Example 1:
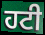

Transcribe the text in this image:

ਹਟੀ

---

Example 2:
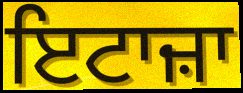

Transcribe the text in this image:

ਇਟਾਜ਼ਾ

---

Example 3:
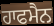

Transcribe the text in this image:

ਹਾਫਮੈਨ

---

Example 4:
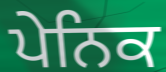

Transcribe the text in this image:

ਪੇਨਿਕ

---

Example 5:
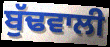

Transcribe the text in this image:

ਬੁੱਢਵਾਲੀ